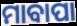
ମାବାପା